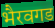
भैरवगड